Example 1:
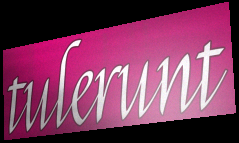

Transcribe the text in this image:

tulerunt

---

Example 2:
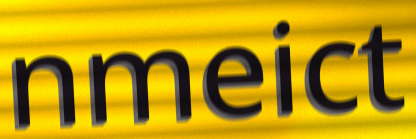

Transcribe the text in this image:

nmeict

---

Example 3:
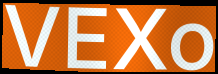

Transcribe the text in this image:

VEXo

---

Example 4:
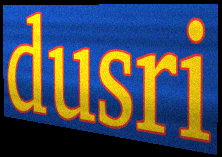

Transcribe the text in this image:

dusri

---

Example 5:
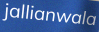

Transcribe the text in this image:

jallianwala